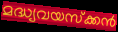
മദ്ധ്യവയസ്ക്കൻ